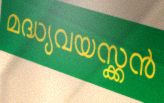
മദ്ധ്യവയസ്ക്കൻ